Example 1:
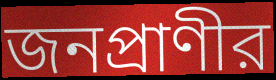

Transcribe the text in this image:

জনপ্রাণীর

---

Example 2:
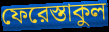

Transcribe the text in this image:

ফেরেস্তাকুল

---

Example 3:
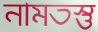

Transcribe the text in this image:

নামতস্তু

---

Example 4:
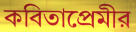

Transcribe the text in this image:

কবিতাপ্রেমীর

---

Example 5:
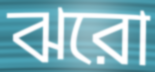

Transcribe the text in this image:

ঝরো